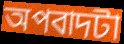
অপবাদটা